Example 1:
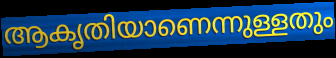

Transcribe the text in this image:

ആകൃതിയാണെന്നുള്ളതും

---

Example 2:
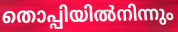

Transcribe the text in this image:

തൊപ്പിയിൽനിന്നും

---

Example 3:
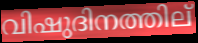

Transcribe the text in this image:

വിഷുദിനത്തില്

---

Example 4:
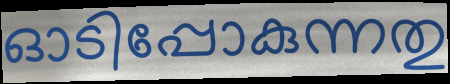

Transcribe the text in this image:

ഓടിപ്പോകുന്നതു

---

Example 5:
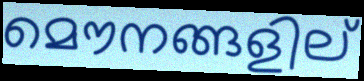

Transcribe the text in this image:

മൌനങ്ങളില്